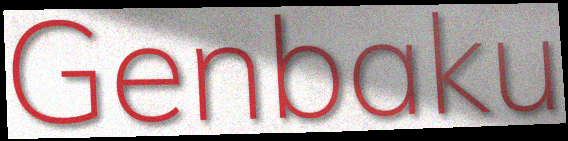
Genbaku